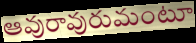
ఆవురావురుమంటూ